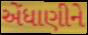
એંધાણીને